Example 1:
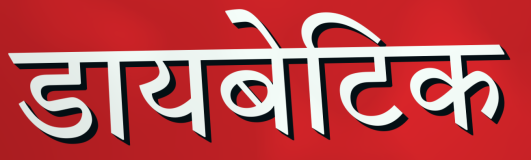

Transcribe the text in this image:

डायबेटिक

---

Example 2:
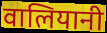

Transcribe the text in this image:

वालियानी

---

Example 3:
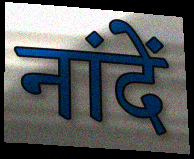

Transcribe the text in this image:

नांदें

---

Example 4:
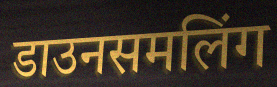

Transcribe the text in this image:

डाउनसमलिंग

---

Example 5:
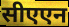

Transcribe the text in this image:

सीएएन